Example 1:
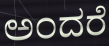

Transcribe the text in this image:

ಅಂದರೆ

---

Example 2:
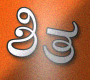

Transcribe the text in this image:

ಶಿತ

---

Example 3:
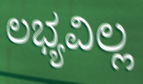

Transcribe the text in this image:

ಲಭ್ಯವಿಲ್ಲ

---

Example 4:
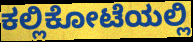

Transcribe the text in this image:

ಕಲ್ಲಿಕೋಟೆಯಲ್ಲಿ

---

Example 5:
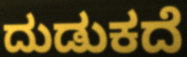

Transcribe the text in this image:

ದುಡುಕದೆ